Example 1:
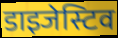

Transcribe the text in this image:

डाइजेस्टिव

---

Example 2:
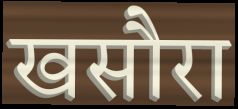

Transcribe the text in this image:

खसौरा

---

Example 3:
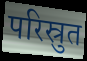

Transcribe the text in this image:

परिस्रुत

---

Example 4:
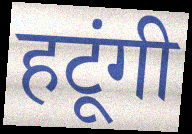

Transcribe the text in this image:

हटूंगी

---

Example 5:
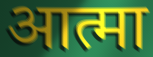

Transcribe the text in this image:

आत्‍मा